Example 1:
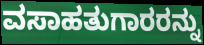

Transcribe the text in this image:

ವಸಾಹತುಗಾರರನ್ನು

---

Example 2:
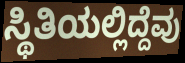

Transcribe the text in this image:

ಸ್ಥಿತಿಯಲ್ಲಿದ್ದೆವು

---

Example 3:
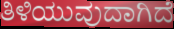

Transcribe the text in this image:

ತಿಳಿಯುವುದಾಗಿದೆ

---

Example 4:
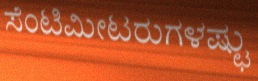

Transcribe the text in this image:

ಸೆಂಟಿಮೀಟರುಗಳಷ್ಟು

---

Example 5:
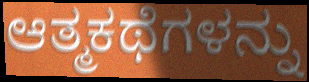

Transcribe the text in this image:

ಆತ್ಮಕಥೆಗಳನ್ನು